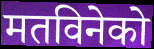
मतविनेको